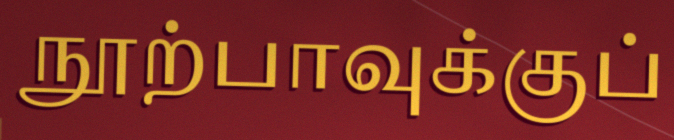
நூற்பாவுக்குப்